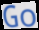
Go